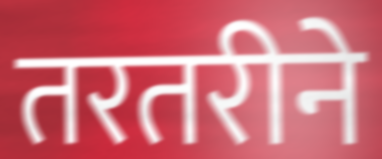
तरतरीने